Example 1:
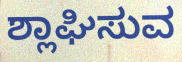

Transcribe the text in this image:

ಶ್ಲಾಘಿಸುವ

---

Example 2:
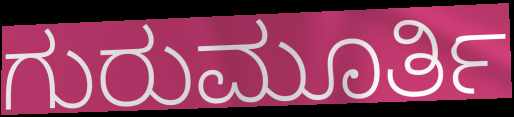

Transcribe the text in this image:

ಗುರುಮೂರ್ತಿ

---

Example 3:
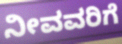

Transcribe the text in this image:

ನೀವವರಿಗೆ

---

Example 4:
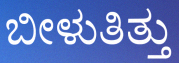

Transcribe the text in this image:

ಬೀಳುತಿತ್ತು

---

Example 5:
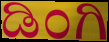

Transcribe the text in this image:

ಡಿಂಗಿ